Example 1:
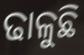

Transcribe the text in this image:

ଢାଳୁଛି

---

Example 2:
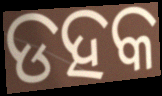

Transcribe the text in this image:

ଡହକ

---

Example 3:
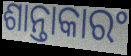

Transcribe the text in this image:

ଶାନ୍ତାକାରଂ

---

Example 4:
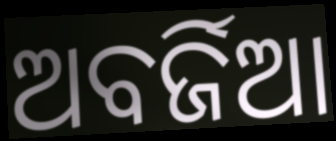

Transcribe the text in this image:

ଅବର୍ଜିଆ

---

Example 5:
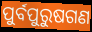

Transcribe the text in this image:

ପୁର୍ବପୁରୁଷଗଣ